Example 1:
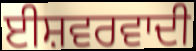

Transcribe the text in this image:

ਈਸ਼ਵਰਵਾਦੀ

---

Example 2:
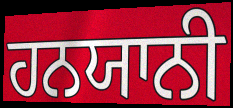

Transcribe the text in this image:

ਹਨਯਾਨੀ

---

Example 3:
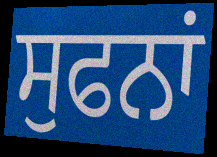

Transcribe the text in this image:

ਸੁਫਨਾਂ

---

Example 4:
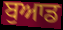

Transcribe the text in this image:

ਬੁਆਡ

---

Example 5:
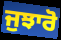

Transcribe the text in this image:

ਜੁਝਾਰੋ